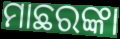
ମାଛରଙ୍କା